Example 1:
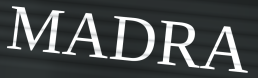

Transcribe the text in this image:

MADRA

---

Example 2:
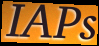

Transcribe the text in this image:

IAPs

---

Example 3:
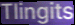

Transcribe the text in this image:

Tlingits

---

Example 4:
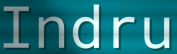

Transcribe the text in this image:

Indru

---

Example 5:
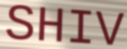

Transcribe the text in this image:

SHIV